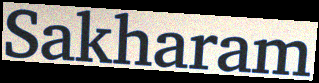
Sakharam